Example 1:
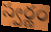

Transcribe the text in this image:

స్వర్ణం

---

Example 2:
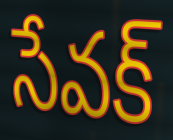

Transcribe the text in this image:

సేవక్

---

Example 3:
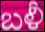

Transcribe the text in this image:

బళీ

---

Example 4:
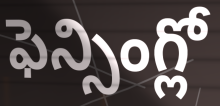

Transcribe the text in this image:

ఫెన్సింగ్లో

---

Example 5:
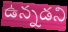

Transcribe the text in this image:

ఉన్నడని